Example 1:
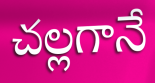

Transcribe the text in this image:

చల్లగానే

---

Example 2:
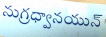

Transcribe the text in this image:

నుగ్రధ్వానయున్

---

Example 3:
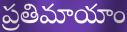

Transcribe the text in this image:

ప్రతిమాయాం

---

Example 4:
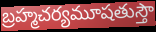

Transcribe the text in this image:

బ్రహ్మచర్యమూషతుస్తౌ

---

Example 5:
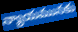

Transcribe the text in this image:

న్యాయమునకు